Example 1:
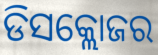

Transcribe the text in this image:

ଡିସକ୍ଲୋଜର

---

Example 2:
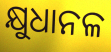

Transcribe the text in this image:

କ୍ଷୁଧାନଳ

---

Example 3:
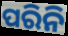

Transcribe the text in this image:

ପରିନି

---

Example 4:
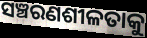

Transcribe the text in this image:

ସଞ୍ଚରଣଶୀଳତାକୁ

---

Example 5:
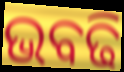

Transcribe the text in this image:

ଭବଢି